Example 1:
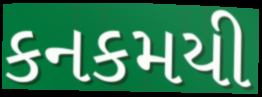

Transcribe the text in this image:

કનકમયી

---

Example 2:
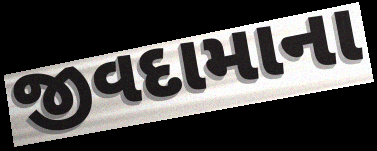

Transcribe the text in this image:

જીવદામાના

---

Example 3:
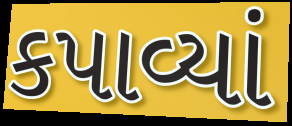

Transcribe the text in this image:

કપાવ્યાં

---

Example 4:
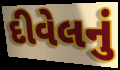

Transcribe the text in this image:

દીવેલનું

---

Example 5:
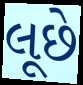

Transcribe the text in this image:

લૂછે